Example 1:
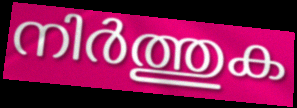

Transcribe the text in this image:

നിർത്തുക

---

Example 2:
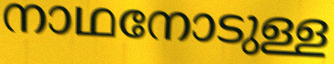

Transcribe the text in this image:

നാഥനോടുള്ള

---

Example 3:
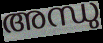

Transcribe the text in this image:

അന്ധു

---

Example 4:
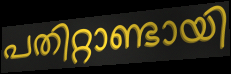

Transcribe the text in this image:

പതിറ്റാണ്ടായി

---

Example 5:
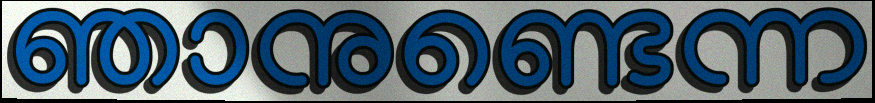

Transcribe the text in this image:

ഞാനുണ്ടെന്ന